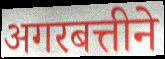
अगरबत्तीने